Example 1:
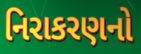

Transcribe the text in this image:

નિરાકરણનો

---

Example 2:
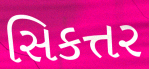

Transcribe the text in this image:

સિકત્તર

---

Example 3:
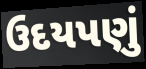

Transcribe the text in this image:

ઉદયપણું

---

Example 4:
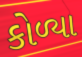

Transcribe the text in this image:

કોળ્યા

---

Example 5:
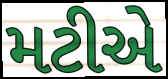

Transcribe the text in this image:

મટીએ